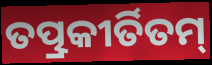
ତତ୍ପ୍ରକୀର୍ତିତମ୍